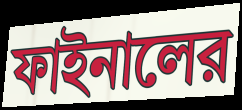
ফাইনালের